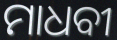
ମାଧବୀ